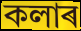
কলাৰ